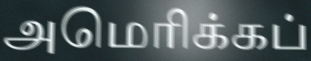
அமெரிக்கப்